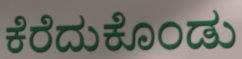
ಕೆರೆದುಕೊಂಡು